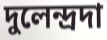
দুলেন্দ্রদা